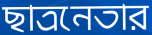
ছাত্রনেতার